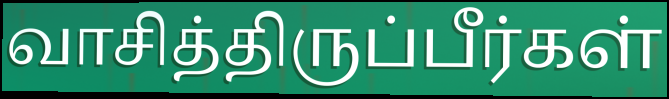
வாசித்திருப்பீர்கள்